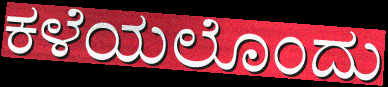
ಕಳೆಯಲೊಂದು